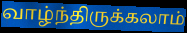
வாழ்ந்திருக்கலாம்